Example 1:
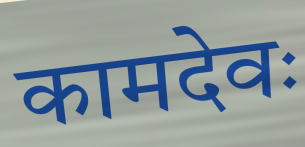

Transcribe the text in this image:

कामदेवः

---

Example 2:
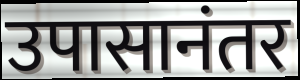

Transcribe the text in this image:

उपासानंतर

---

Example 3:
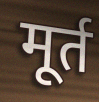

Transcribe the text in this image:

मूर्त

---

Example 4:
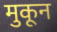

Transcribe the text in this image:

मुकून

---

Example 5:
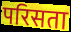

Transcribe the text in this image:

परिसता